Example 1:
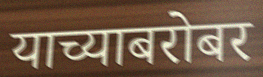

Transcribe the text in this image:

याच्याबरोबर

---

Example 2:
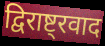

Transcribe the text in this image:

द्विराष्ट्रवाद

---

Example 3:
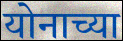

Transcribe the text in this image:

योनाच्या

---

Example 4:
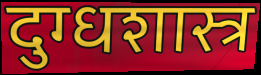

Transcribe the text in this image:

दुग्धशास्त्र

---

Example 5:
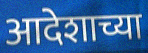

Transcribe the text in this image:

आदेशाच्या